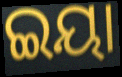
ଇୟା